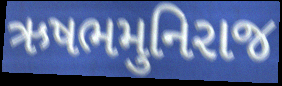
ઋષભમુનિરાજ